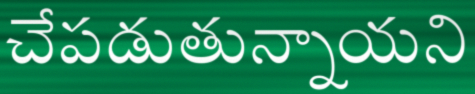
చేపడుతున్నాయని